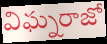
విఘ్నరాజో